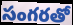
సంగరతో